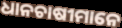
ଧାନଚାଷୀମାନେ